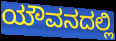
ಯೌವನದಲ್ಲಿ